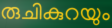
രുചികുറയും